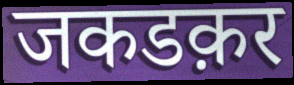
जकडक़र